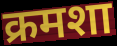
क्रमशा